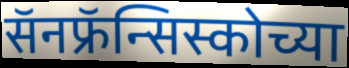
सॅनफ्रॅन्सिस्कोच्या